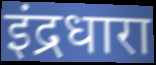
इंद्रधारा